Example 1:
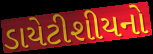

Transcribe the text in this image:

ડાયેટીશીયનો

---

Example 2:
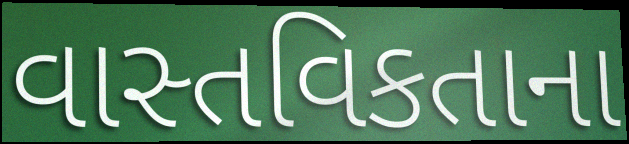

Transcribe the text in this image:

વાસ્તવિકતાના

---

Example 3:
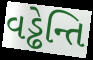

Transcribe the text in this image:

વડ્ઢેન્તિ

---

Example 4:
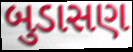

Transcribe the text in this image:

બુડાસણ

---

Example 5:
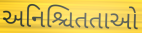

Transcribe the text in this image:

અનિશ્ચિતતાઓ